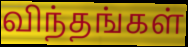
விந்தங்கள்